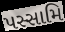
પસ્સામિ